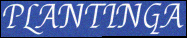
PLANTINGA